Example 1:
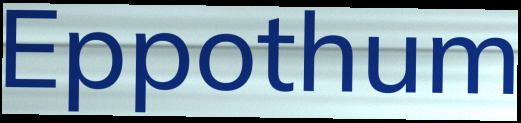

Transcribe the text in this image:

Eppothum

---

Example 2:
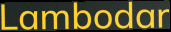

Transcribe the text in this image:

Lambodar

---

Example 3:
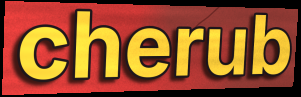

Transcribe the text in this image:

cherub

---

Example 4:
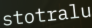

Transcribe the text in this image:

stotralu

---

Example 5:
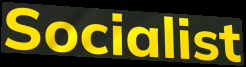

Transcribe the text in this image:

Socialist